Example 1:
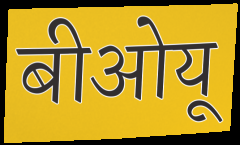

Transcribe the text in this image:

बीओयू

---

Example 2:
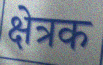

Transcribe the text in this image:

क्षेत्रक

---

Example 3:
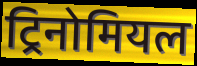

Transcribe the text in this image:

ट्रिनोमियल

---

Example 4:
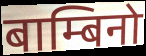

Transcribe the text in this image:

बाम्बिनो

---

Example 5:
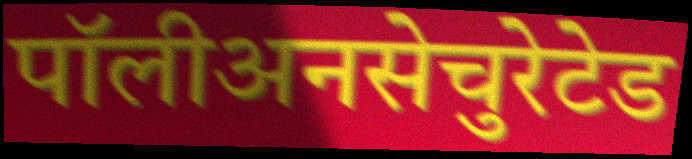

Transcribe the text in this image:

पॉलीअनसेचुरेटेड